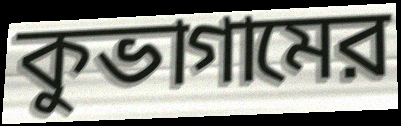
কুভাগামের